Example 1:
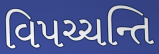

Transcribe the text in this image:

વિપચ્ચન્તિ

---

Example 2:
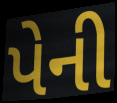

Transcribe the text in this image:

પેની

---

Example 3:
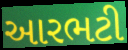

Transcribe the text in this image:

આરભટી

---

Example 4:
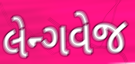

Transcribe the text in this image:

લેન્ગવેજ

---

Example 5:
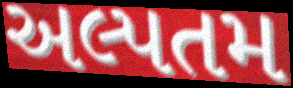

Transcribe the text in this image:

અલ્પતમ